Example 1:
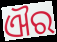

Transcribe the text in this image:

ଐର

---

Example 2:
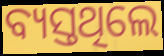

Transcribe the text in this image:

ବ୍ୟସ୍ତଥିଲେ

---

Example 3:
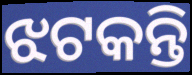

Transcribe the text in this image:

ଝଟକନ୍ତି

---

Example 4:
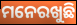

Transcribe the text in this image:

ମନେରଖୁଛି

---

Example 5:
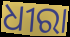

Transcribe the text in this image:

ଧୀରା